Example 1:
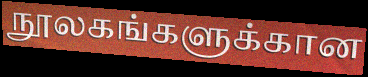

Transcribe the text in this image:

நூலகங்களுக்கான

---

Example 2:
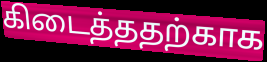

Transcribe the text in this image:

கிடைத்ததற்காக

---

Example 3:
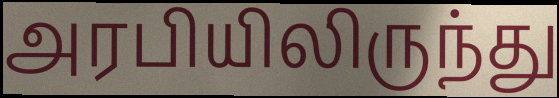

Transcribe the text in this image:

அரபியிலிருந்து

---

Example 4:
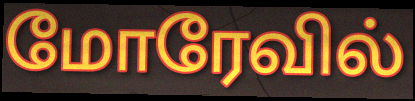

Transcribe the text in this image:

மோரேவில்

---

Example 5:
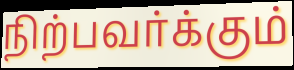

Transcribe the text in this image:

நிற்பவர்க்கும்